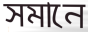
সমানে